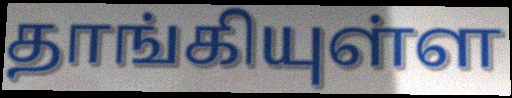
தாங்கியுள்ள